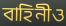
বাহিনীও